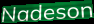
Nadeson